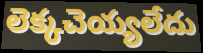
లెక్కచెయ్యలేదు